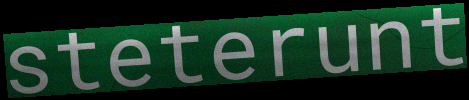
steterunt